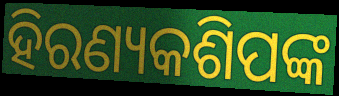
ହିରଣ୍ୟକଶିପଙ୍କ